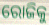
ରୋଜିକୁ